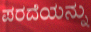
ಪರದೆಯನ್ನು